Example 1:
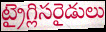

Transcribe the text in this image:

ట్రైగ్లిసరైడులు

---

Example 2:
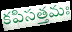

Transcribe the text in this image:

కపిసత్తమః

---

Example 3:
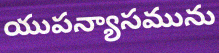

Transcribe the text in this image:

యుపన్యాసమును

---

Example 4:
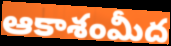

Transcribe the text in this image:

ఆకాశంమీద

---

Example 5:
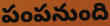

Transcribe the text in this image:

పంపనుంది